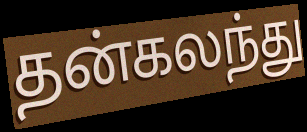
தன்கலந்து